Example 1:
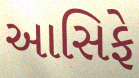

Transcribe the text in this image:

આસિફે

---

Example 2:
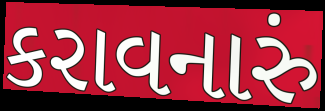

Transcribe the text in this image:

કરાવનારું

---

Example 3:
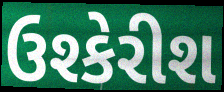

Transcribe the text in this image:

ઉશ્કેરીશ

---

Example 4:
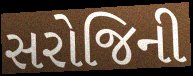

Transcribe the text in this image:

સરોજિની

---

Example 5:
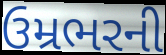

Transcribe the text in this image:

ઉમ્રભરની